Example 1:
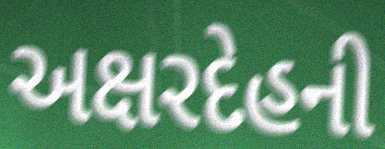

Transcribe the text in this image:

અક્ષરદેહની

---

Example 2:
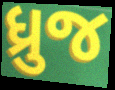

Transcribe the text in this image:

ધ્રુજ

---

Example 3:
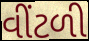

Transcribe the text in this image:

વીંટળી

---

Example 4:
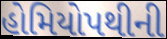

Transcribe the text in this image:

હોમિયોપથીની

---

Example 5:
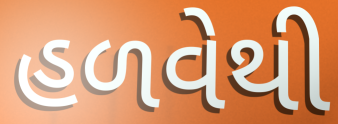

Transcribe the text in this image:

હળવેથી